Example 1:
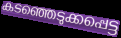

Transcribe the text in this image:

കടഞ്ഞെടുക്കപ്പെട്ട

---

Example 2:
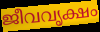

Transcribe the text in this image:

ജീവവൃക്ഷം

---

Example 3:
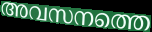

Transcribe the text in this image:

അവസനത്തെ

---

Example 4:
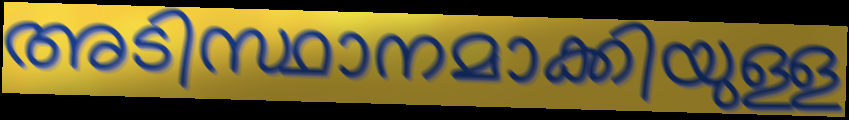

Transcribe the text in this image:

അടിസ്ഥാനമാക്കിയുള്ള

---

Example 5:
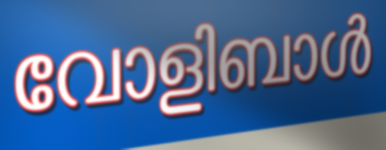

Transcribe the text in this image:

വോളിബാൾ